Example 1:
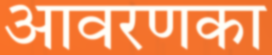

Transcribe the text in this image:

आवरणका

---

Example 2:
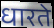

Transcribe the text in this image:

धारते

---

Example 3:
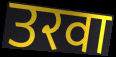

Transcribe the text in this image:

उरवा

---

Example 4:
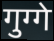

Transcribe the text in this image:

गुग्गे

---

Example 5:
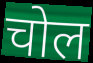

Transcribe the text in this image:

चोल